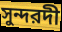
সুন্দরদী